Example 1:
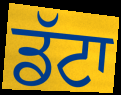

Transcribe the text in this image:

ਡੱਟਾ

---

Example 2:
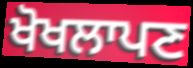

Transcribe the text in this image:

ਖੋਖਲਾਪਣ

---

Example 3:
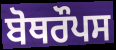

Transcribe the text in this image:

ਬੋਥਰੌਪਸ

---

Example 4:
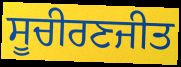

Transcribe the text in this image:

ਸੂਚੀਰਣਜੀਤ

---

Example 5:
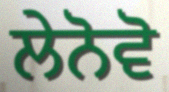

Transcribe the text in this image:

ਲੇਨੋਵੋ